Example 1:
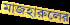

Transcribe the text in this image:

মাজহারুলের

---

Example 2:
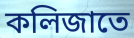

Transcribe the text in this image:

কলিজাতে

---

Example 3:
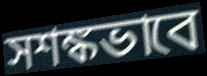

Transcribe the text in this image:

সশঙ্কভাবে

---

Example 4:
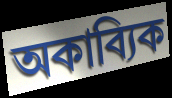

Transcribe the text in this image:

অকাব্যিক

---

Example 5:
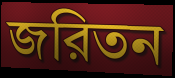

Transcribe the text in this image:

জরিতন